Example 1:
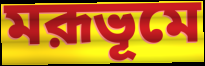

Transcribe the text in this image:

মরূভূমে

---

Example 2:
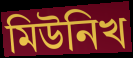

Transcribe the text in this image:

মিউনিখ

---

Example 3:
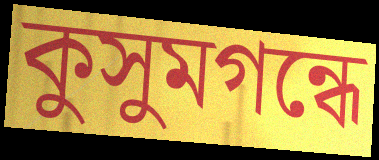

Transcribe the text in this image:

কুসুমগন্ধে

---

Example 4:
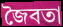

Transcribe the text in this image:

জৈবতা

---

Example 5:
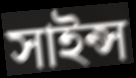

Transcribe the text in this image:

সাইন্স